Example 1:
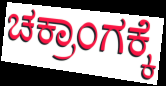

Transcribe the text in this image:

ಚಕ್ರಾಂಗಕ್ಕೆ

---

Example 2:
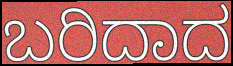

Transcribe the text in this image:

ಬರಿದಾದ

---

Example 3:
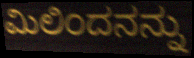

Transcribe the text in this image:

ಮಿಲಿಂದನನ್ನು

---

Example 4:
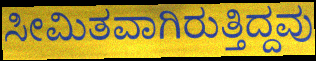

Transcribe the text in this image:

ಸೀಮಿತವಾಗಿರುತ್ತಿದ್ದವು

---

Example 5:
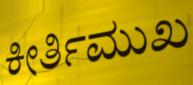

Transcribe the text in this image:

ಕೀರ್ತಿಮುಖ